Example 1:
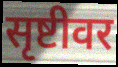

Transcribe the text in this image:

सृष्टीवर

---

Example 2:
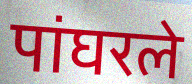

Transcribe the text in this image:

पांघरले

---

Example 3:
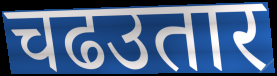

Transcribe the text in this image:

चढउतार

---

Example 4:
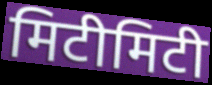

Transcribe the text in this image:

मिटीमिटी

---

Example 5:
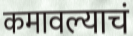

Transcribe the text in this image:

कमावल्याचं